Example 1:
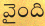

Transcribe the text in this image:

వైంది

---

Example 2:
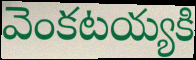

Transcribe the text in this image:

వెంకటయ్యకి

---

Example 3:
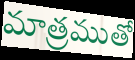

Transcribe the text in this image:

మాత్రముతో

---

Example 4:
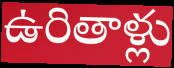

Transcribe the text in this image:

ఉరితాళ్లు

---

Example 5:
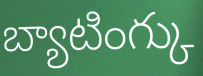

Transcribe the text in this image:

బ్యాటింగ్కు